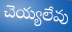
చెయ్యలేవు